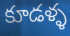
కూడళ్ళ